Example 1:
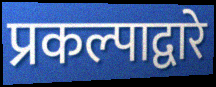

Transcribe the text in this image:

प्रकल्पाद्वारे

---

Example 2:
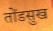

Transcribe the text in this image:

तोंडसुख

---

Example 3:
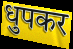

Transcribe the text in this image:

धुपकर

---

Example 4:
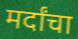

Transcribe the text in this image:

मर्दांचा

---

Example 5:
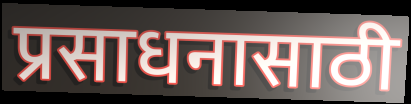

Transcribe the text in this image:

प्रसाधनासाठी